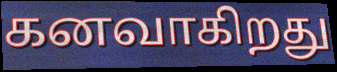
கனவாகிறது